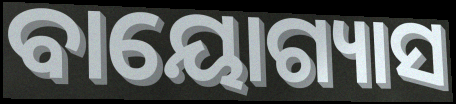
ବାୟୋଗ୍ୟାସ